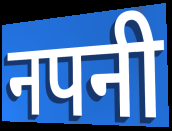
नपनी